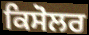
ਕਿਸੋਲਰ